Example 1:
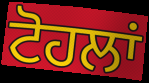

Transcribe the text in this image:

ਟੋਹਲਾਂ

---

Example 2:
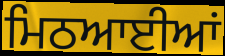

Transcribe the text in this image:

ਮਿਠਆਈਆਂ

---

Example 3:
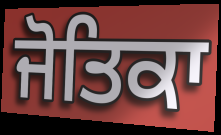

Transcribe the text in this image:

ਜੋਤਿਕਾ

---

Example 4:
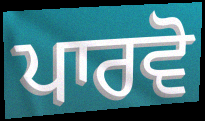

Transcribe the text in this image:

ਪਾਰਵੋ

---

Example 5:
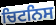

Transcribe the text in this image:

ਚਿਟਨਿਸ